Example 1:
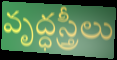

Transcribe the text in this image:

వృద్ధస్త్రీలు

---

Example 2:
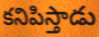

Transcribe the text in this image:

కనిపిస్తాడు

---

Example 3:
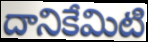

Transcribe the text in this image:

దానికేమిటి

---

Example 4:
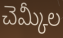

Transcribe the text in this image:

చెమ్కీల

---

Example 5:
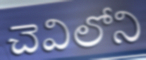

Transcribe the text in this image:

చెవిలోని